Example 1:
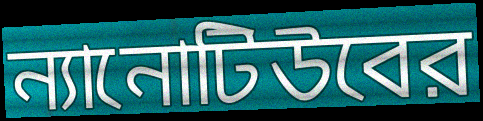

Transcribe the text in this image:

ন্যানোটিউবের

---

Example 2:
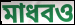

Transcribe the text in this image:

মাধবও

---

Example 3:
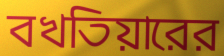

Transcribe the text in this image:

বখতিয়ারের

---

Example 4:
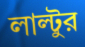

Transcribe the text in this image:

লাল্টুর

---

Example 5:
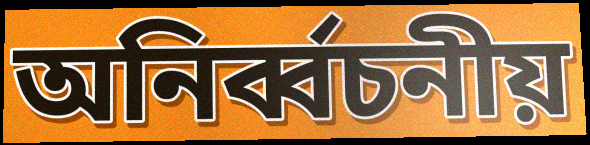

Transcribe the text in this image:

অনির্ব্বচনীয়